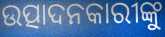
ଉତ୍ପାଦନକାରୀଙ୍କୁ